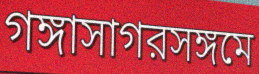
গঙ্গাসাগরসঙ্গমে